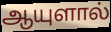
ஆயுளால்